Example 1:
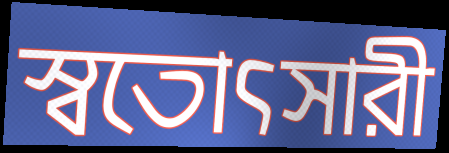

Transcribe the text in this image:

স্বতোৎসারী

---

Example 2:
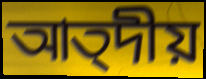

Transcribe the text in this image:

আত্দীয়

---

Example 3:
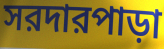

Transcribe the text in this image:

সরদারপাড়া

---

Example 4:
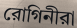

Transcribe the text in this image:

রোগিনীরা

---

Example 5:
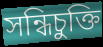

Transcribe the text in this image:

সন্ধিচুক্তি